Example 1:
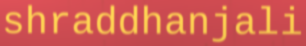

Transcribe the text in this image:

shraddhanjali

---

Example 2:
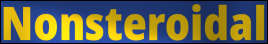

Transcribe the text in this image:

Nonsteroidal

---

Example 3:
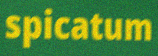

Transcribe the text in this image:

spicatum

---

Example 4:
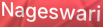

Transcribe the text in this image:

Nageswari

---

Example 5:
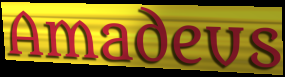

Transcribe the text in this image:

Amadeus